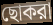
ছোকরা